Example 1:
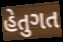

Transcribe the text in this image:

હેતુગત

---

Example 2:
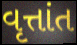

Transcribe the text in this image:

વૃત્તાંત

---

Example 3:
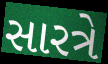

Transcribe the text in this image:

સારત્રે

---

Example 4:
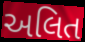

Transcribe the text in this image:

અલિત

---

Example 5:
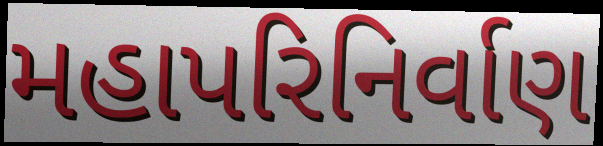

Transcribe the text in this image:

મહાપરિનિર્વાણ